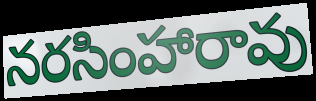
నరసింహారావు